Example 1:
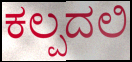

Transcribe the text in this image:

ಕಲ್ಪದಲಿ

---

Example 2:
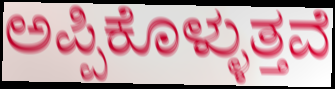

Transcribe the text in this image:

ಅಪ್ಪಿಕೊಳ್ಳುತ್ತವೆ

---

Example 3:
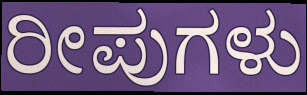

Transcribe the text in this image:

ರೀಪುಗಳು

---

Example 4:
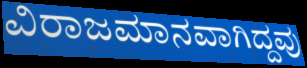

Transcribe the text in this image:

ವಿರಾಜಮಾನವಾಗಿದ್ದವು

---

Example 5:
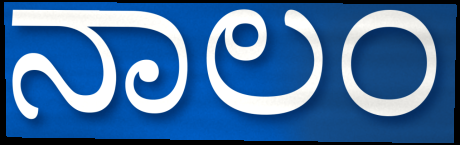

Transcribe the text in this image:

ನಾಲಂ